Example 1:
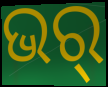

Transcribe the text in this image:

ଭର୍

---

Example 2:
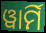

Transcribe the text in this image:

ୱାର୍ମି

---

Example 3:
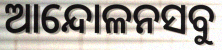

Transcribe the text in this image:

ଆନ୍ଦୋଳନସବୁ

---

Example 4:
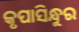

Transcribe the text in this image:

କୃପାସିନ୍ଧୁର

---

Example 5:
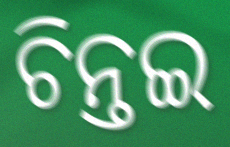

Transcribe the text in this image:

ଚିନ୍ତଇ